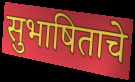
सुभाषिताचे